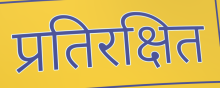
प्रतिरक्षित